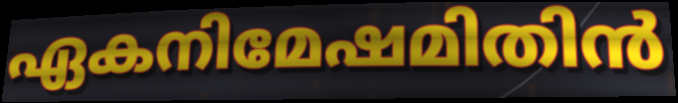
ഏകനിമേഷമിതിൻ